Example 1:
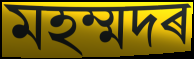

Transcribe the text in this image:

মহম্মদৰ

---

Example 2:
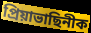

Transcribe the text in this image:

প্ৰিয়াভাছিনীক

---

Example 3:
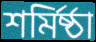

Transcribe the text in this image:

শৰ্মিষ্ঠা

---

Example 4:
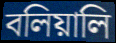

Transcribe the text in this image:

বলিয়ালি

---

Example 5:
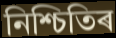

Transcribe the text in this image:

নিশ্চিতিৰ